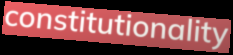
constitutionality